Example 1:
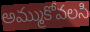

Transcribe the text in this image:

అమ్ముకోవలసి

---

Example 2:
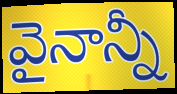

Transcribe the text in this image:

వైనాన్నీ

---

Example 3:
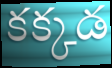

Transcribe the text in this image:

కక్కడ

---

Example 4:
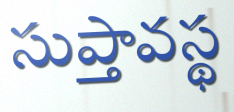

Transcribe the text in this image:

సుప్తావస్థ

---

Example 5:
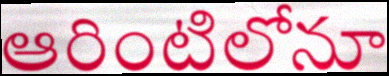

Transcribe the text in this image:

ఆరింటిలోనూ